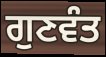
ਗੁਣਵੰਤ